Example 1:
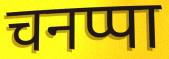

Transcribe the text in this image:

चनप्पा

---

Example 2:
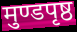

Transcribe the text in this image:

मुण्डपृष्ठ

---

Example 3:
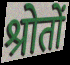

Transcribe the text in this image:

श्रोतों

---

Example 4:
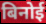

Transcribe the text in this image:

बिनोई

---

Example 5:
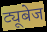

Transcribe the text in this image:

ट्यूबेज